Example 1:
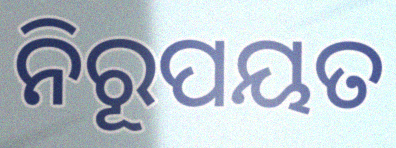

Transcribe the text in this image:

ନିରୂପୟତ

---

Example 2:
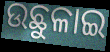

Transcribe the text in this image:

ଉଛୁଳାଇ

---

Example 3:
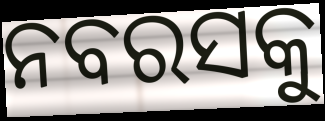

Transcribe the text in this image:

ନବରସକୁ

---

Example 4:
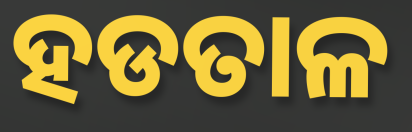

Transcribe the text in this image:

ହଡତାଳ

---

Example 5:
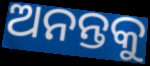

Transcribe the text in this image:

ଅନନ୍ତକୁ